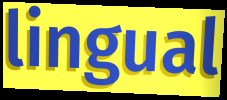
lingual